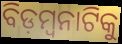
ବିଡ଼ମ୍ବନାଟିକୁ